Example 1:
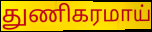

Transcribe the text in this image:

துணிகரமாய்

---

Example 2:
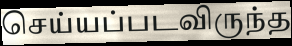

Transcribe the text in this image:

செய்யப்படவிருந்த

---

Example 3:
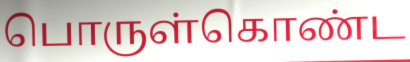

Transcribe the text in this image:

பொருள்கொண்ட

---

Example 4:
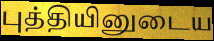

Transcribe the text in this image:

புத்தியினுடைய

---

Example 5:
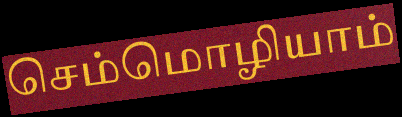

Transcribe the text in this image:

செம்மொழியாம்